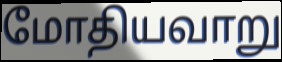
மோதியவாறு